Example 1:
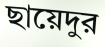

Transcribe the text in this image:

ছায়েদুর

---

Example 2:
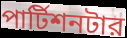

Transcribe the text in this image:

পার্টিশনটার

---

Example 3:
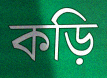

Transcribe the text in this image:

কড়ি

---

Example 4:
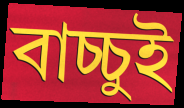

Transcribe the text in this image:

বাচ্চুই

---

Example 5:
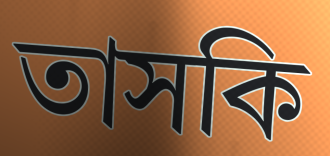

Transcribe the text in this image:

তাসকি